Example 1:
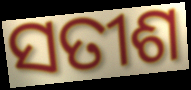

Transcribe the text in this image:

ସତୀଶ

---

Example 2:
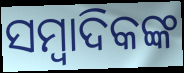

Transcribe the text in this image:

ସମ୍ୱାଦିକଙ୍କ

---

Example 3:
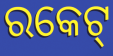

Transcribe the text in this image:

ରକେଟ୍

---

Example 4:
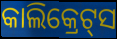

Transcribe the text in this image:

କାଲିକ୍ରେଟ୍‍ସ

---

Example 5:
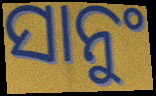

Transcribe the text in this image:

ସାନୁଂ